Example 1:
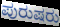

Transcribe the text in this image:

ಪುರುಷರು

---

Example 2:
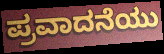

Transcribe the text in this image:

ಪ್ರವಾದನೆಯು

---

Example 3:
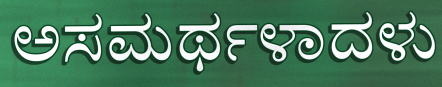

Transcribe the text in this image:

ಅಸಮರ್ಥಳಾದಳು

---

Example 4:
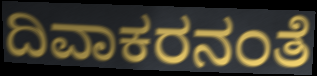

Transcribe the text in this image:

ದಿವಾಕರನಂತೆ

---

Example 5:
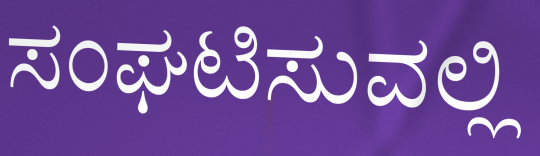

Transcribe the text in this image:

ಸಂಘಟಿಸುವಲ್ಲಿ